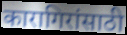
कारागिरांसाठी